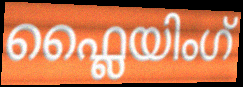
ഫ്ലൈയിംഗ്